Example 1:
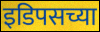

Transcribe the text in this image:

इडिपसच्या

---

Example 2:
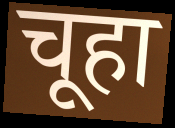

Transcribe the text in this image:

चूहा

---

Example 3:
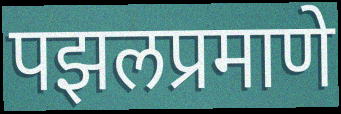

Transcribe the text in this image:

पझलप्रमाणे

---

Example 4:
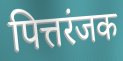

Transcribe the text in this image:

पित्तरंजक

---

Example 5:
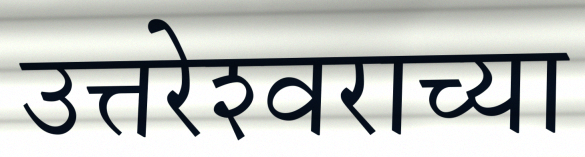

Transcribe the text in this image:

उत्तरेश्वराच्या